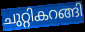
ചുറ്റികറങ്ങി